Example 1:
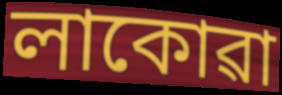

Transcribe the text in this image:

লাকোৱা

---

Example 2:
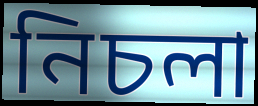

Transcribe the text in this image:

নিচলা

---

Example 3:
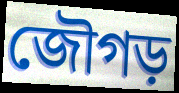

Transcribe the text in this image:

জৌগড়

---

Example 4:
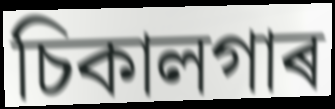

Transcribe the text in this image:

চিকালগাৰ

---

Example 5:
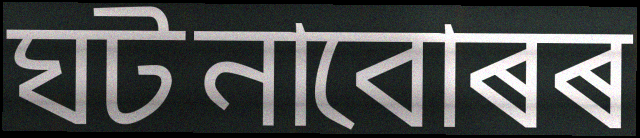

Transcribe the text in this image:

ঘটনাবোৰৰ